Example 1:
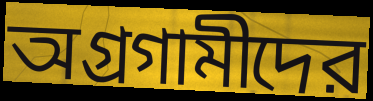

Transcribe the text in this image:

অগ্রগামীদের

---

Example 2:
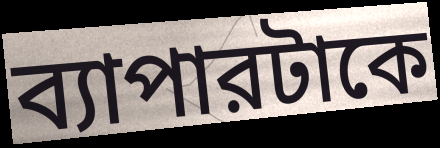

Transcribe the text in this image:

ব্যাপারটাকে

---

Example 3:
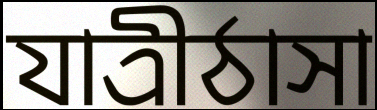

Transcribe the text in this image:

যাত্রীঠাসা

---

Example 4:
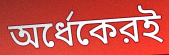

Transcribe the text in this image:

অর্ধেকেরই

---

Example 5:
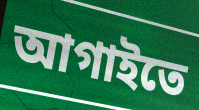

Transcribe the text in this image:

আগাইতে